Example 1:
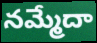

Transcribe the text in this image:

నమ్మేదా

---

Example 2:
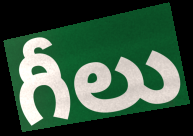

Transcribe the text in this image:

గీలు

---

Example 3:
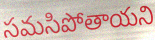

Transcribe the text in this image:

సమసిపోతాయని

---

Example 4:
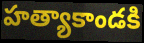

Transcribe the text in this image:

హత్యాకాండకి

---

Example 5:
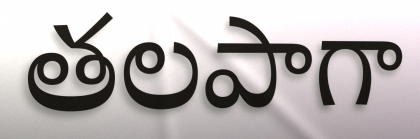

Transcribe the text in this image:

తలపాగా